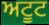
ਅਟੂਟ